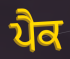
ਪੈਕ